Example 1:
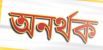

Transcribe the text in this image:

অনর্থক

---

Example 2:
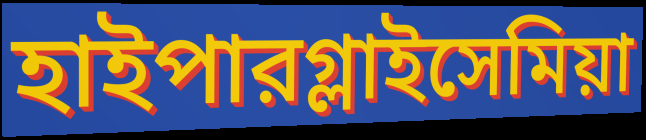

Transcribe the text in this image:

হাইপারগ্লাইসেমিয়া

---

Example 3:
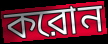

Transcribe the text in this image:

করোন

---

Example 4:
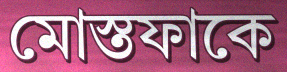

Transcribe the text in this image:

মোস্তফাকে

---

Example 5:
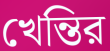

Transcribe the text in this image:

খেন্তির